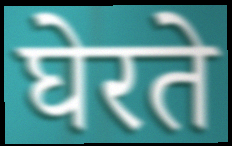
घेरते